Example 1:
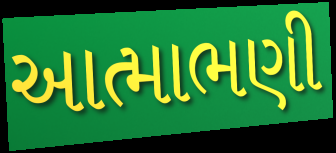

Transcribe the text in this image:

આત્માભણી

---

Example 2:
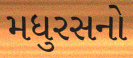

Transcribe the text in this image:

મધુરસનો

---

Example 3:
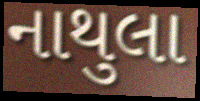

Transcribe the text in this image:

નાથુલા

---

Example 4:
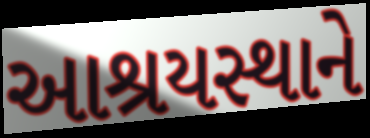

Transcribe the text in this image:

આશ્રયસ્થાને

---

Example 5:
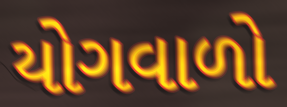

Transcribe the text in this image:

યોગવાળો